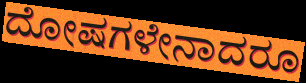
ದೋಷಗಳೇನಾದರೂ